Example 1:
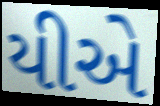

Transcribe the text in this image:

યીએ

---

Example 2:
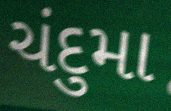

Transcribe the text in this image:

ચંદુમા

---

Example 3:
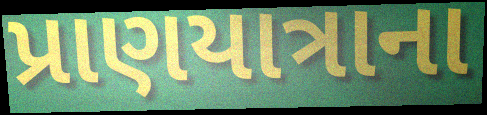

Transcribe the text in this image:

પ્રાણયાત્રાના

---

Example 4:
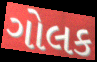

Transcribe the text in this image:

ગોલક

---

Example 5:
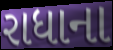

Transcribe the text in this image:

રાધાના